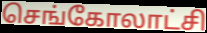
செங்கோலாட்சி